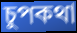
চুপকথা